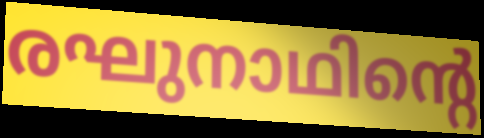
രഘുനാഥിന്റെ